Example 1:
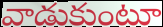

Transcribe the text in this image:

వాడుకుంటూ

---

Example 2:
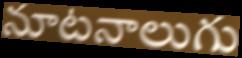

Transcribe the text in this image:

నూటనాలుగు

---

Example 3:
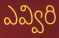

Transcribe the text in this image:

ఎవ్విరి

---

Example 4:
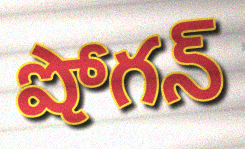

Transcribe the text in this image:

షోగన్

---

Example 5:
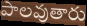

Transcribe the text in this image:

పాలవుతారు